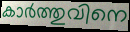
കാർത്തുവിനെ